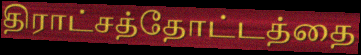
திராட்சத்தோட்டத்தை